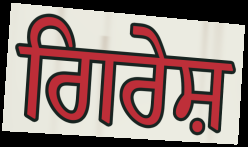
ਗਿਰੇਸ਼